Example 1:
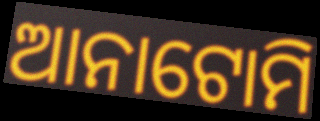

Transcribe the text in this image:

ଆନାଟୋମି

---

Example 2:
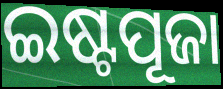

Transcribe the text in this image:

ଇଷ୍ଟପୂଜା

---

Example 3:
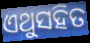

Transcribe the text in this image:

ଏଥୁସହିତ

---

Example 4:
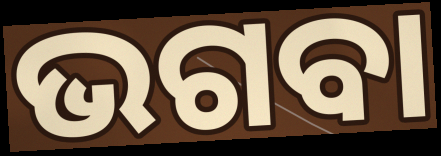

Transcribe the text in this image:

ଭଗବା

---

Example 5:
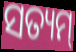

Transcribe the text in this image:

ସତ୍ୟମ୍